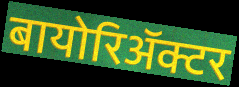
बायोरिॲक्टर